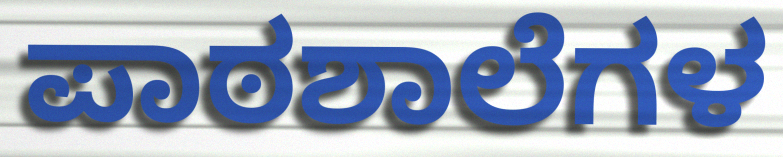
ಪಾಠಶಾಲೆಗಳ